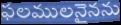
ఫలములనైనను